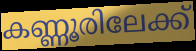
കണ്ണൂരിലേക്ക്